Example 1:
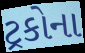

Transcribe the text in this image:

ટ્રકોના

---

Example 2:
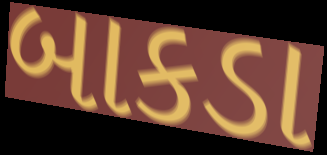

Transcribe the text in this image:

બાકડા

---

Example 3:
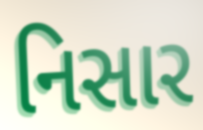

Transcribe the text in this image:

નિસાર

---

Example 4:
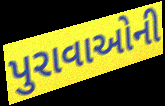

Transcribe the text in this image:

પુરાવાઓની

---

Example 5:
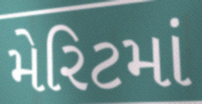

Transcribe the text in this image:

મેરિટમાં